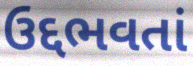
ઉદ્દભવતાં